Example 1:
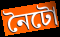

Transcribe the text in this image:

নৈটো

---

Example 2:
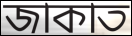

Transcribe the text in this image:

জাকাত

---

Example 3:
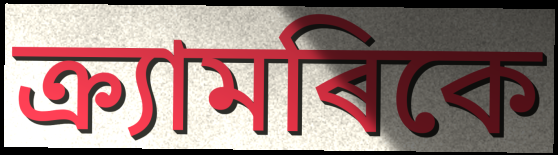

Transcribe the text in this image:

ক্ৰ্যামৰিকে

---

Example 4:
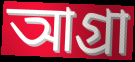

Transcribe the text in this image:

আগ্ৰা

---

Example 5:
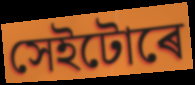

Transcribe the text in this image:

সেইটোৰে